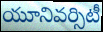
యూనివర్సిటీ